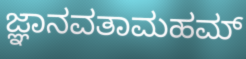
ಜ್ಞಾನವತಾಮಹಮ್